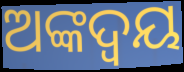
ଅଙ୍କଦ୍ବୟ